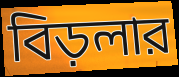
বিড়লার